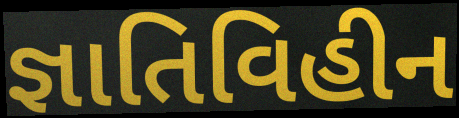
જ્ઞાતિવિહીન